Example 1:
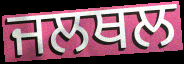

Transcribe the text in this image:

ਜਲਥਲ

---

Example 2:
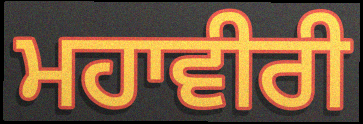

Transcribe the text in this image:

ਮਹਾਵੀਰੀ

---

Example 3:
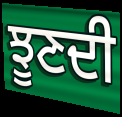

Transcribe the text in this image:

ਝੂਣਦੀ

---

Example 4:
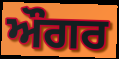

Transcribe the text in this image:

ਔਗਰ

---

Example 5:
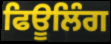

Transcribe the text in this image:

ਫਿਊਲਿੰਗ